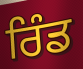
ਰਿੰਡ